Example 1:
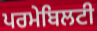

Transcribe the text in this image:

ਪਰਮੇਬਿਲਟੀ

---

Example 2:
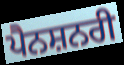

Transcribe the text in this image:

ਪੈਨਸ਼ਨਰੀ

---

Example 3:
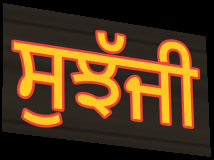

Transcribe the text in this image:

ਸੁਝੱਜੀ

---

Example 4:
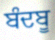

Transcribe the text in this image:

ਬੰਦਬੂ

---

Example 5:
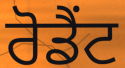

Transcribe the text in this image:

ਰੋਡੈਂਟ